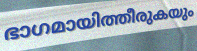
ഭാഗമായിത്തീരുകയും